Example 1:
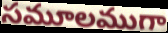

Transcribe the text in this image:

సమూలముగా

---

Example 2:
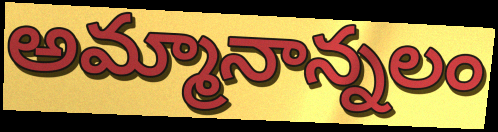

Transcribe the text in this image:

అమ్మానాన్నలం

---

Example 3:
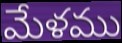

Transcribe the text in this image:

మేళము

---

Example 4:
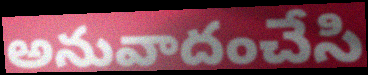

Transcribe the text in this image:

అనువాదంచేసి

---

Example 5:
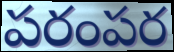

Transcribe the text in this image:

పరంపర